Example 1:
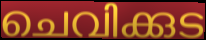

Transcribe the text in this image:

ചെവിക്കുട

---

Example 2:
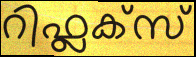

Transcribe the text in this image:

റിഫ്ലക്സ്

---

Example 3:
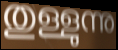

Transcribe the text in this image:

തുള്ളുന്നു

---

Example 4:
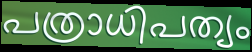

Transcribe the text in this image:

പത്രാധിപത്യം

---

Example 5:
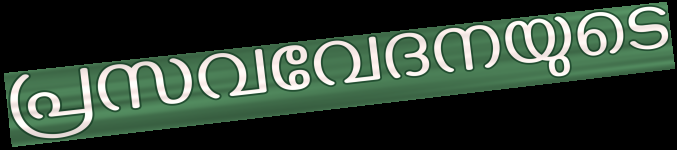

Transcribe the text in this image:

പ്രസവവേദനയുടെ